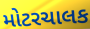
મોટરચાલક